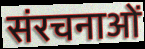
संरचनाओं